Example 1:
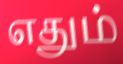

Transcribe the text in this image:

எதும்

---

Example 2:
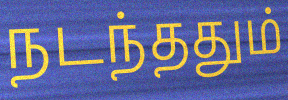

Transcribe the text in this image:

நடந்ததும்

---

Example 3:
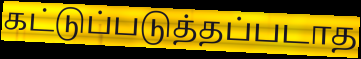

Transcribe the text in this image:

கட்டுப்படுத்தப்படாத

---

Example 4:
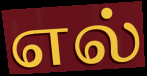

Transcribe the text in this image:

எல்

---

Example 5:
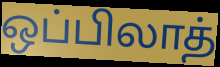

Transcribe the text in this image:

ஒப்பிலாத்